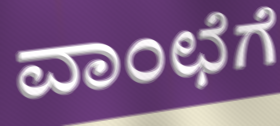
ವಾಂಛೆಗೆ